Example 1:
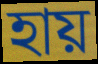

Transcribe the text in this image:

হায়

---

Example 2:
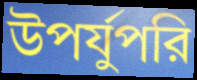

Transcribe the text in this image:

উপর্যুপরি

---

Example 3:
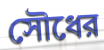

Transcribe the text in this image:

সৌধের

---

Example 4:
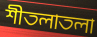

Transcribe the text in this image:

শীতলাতলা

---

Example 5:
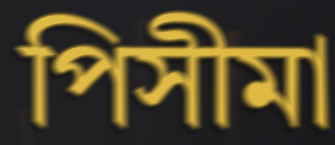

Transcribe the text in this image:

পিসীমা